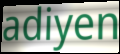
adiyen